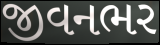
જીવનભર